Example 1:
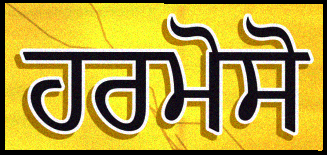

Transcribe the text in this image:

ਹਰਮੋਸੋ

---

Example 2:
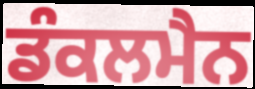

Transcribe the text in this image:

ਡੰਕਲਮੈਨ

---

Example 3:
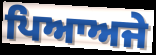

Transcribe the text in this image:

ਪਿਆਅਜੇ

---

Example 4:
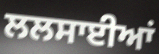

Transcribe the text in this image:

ਲਲਸਾਈਆਂ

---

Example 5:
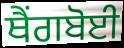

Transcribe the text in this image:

ਥੈਂਗਬੋਈ